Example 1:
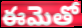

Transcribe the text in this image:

ఈమెతో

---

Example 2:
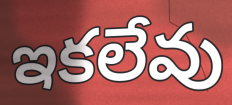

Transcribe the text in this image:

ఇకలేవు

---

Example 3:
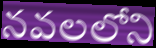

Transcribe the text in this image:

నవలలోని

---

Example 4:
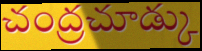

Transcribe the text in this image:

చంద్రచూడ్కు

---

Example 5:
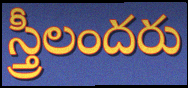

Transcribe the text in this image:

స్త్రీలందరు